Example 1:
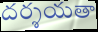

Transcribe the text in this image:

దర్శయతా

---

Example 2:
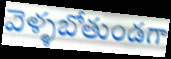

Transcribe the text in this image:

వెళ్ళబోతుండగా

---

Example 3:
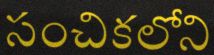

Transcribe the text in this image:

సంచికలోని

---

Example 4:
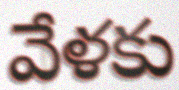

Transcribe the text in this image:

వేళకు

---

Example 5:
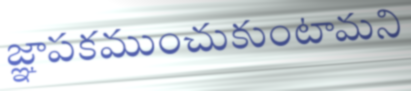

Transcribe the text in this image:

జ్ఞాపకముంచుకుంటామని